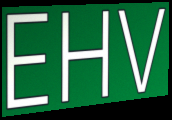
EHV